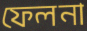
ফেলনা